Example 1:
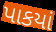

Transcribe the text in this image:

પાકયાં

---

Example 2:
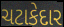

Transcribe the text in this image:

ચટાકેદાર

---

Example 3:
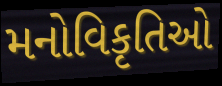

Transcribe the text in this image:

મનોવિકૃતિઓ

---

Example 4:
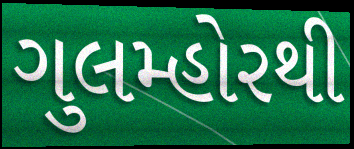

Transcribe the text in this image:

ગુલમ્હોરથી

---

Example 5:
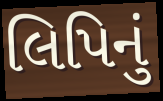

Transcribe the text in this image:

લિપિનું